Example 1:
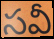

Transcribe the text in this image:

సవీ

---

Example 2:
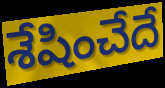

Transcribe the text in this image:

శేషించేదే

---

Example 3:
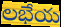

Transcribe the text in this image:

లభేయ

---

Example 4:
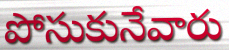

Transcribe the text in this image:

పోసుకునేవారు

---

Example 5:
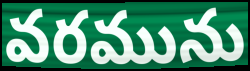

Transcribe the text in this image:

వరమును